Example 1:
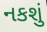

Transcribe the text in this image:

નકશું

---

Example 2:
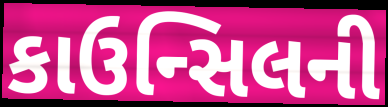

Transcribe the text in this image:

કાઉન્સિલની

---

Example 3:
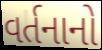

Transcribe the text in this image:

વર્તનાનો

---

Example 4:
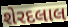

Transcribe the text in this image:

શેરદલાલ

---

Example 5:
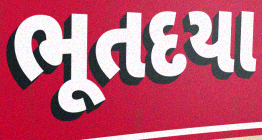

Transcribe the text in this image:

ભૂતદયા